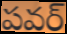
పవర్